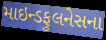
માઇન્ડફુલનેસના